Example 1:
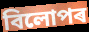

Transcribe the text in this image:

বিলোপৰ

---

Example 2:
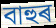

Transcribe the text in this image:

বাহুৰ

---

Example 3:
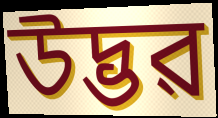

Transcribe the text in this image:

উদ্ভৱ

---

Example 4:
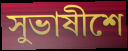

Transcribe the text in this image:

সুভাষীশে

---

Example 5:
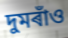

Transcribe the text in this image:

দুমৰাঁও